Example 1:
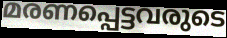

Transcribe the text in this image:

മരണപ്പെട്ടവരുടെ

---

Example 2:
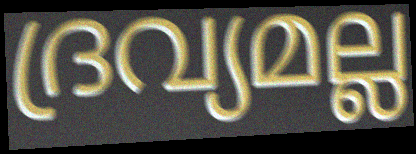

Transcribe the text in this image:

ദ്രവ്യമല്ല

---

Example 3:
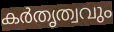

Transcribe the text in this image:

കർതൃത്വവും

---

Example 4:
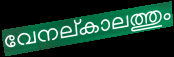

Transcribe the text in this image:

വേനല്കാലത്തും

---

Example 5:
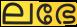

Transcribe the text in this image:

ലഭേ